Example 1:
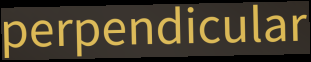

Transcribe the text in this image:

perpendicular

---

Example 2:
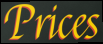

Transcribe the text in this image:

Prices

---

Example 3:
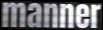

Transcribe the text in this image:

manner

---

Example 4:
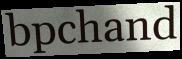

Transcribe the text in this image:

bpchand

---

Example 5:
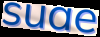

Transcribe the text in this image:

suae